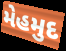
મેહમુદ